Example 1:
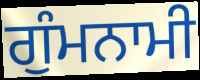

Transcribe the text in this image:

ਗੁੰਮਨਾਮੀ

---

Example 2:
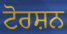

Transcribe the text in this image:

ਟੋਰਸ਼ਨ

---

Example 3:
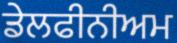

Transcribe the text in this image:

ਡੇਲਫੀਨੀਅਮ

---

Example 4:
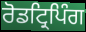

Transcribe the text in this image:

ਰੋਡਟ੍ਰਿਪਿੰਗ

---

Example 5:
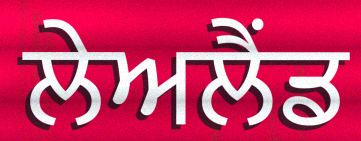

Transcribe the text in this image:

ਲੇਅਲੈਂਡ